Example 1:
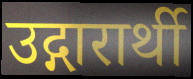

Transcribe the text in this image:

उद्गारार्थी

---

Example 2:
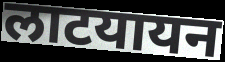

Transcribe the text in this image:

लाटयायन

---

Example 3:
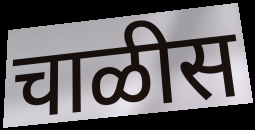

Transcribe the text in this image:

चाळीस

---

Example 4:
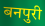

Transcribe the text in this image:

बनपुरी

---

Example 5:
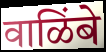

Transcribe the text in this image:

वाळिंबे